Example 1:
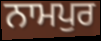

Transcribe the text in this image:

ਨਾਮਪੁਰ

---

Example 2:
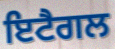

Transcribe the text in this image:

ਇਟੈਗਲ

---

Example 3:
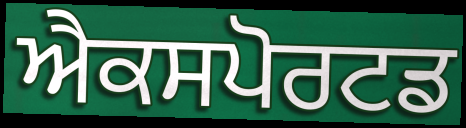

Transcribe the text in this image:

ਐਕਸਪੋਰਟਡ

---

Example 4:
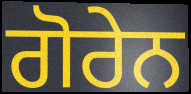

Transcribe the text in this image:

ਗੋਰੇਨ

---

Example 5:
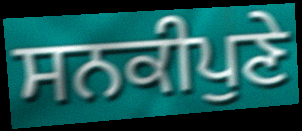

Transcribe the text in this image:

ਸਨਕੀਪੁਣੇ